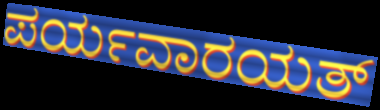
ಪರ್ಯವಾರಯತ್